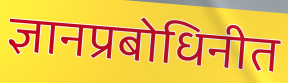
ज्ञानप्रबोधिनीत